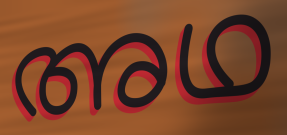
അഥ